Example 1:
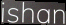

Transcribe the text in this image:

ishan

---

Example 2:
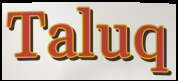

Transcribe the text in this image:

Taluq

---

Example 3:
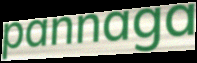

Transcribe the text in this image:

pannaga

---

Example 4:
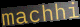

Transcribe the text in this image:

machhi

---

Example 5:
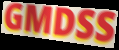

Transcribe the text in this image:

GMDSS